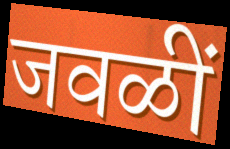
जवळीं